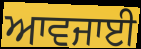
ਆਵਜਾਈ